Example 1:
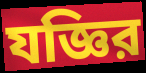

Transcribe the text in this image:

যজ্ঞির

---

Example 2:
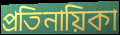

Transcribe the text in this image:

প্রতিনায়িকা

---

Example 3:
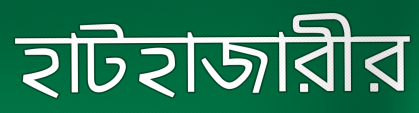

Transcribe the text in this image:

হাটহাজারীর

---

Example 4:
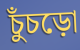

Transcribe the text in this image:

চুঁচড়ো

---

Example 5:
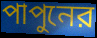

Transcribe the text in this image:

পাপুনের